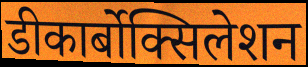
डीकार्बोक्सिलेशन